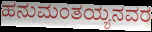
ಹನುಮಂತಯ್ಯನವರ